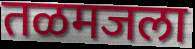
तळमजला